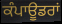
ਕੰਪਾਊਡਰਾਂ